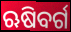
ଋଷିବର୍ଗ